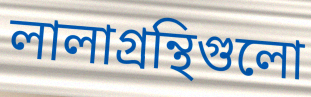
লালাগ্রন্থিগুলো